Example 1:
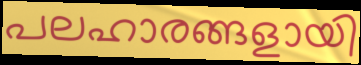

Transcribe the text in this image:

പലഹാരങ്ങളായി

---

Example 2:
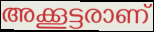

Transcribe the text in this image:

അക്കൂട്ടരാണ്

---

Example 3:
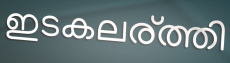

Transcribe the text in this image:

ഇടകലര്ത്തി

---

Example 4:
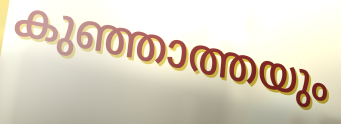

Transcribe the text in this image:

കുഞ്ഞാത്തയും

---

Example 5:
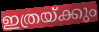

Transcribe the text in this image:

ഇത്രയ്ക്കും